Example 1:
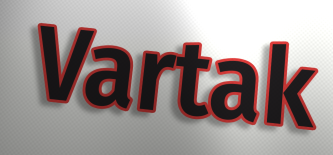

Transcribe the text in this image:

Vartak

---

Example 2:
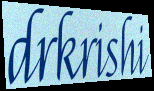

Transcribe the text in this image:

drkrishi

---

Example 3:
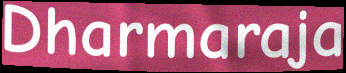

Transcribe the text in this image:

Dharmaraja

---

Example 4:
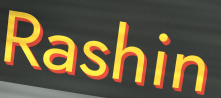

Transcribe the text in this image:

Rashin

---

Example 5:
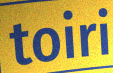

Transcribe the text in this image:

toiri